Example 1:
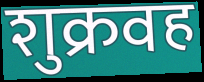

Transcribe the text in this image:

शुक्रवह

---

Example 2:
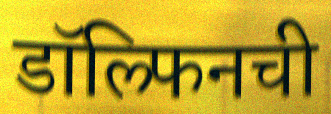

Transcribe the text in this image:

डॉल्फिनची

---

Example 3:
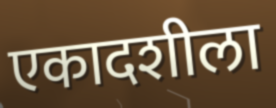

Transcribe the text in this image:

एकादशीला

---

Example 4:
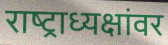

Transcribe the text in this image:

राष्ट्राध्यक्षांवर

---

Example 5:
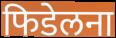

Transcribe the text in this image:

फिडेलना